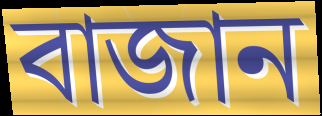
বাজান